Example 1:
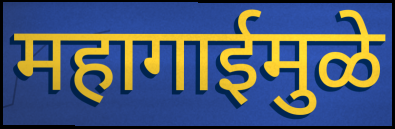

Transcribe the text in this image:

महागाईमुळे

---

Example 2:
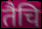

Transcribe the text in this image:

तैचि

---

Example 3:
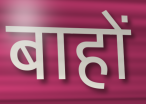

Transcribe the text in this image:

बाहों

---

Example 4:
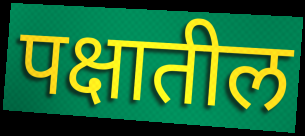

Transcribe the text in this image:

पक्षातील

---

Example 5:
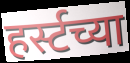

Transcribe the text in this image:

हर्स्टच्या